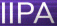
IIPA